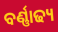
ବର୍ଣ୍ଣାଢ୍ୟ